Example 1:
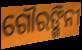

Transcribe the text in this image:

ଗୌରଙ୍ଗିନୀ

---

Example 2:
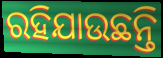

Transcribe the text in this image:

ରହିଯାଉଛନ୍ତି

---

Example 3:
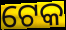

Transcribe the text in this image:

ଟେକ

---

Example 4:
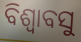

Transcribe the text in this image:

ବିଶ୍ୱାବସୁ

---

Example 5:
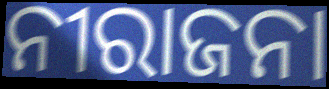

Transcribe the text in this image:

ନୀରାଜନା